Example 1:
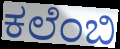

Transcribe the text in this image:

ಕಲೆಂಬಿ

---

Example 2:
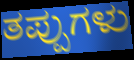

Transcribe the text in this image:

ತಪ್ಪುಗಳು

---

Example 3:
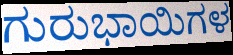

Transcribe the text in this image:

ಗುರುಭಾಯಿಗಳ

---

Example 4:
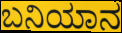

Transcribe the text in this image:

ಬನಿಯಾನ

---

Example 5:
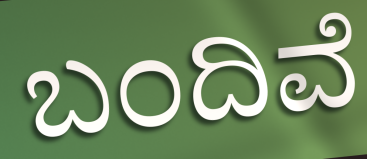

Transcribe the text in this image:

ಬಂದಿವೆ